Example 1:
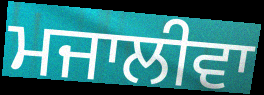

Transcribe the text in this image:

ਮਜਾਲੀਵਾ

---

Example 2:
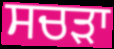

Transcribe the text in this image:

ਸਚੜਾ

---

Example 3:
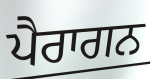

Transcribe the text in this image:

ਪੈਰਾਗਨ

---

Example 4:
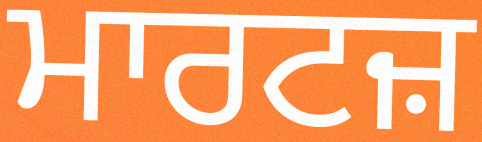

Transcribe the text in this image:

ਮਾਰਟਜ਼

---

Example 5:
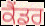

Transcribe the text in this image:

ਕੈਂਡਰ